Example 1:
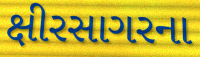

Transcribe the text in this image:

ક્ષીરસાગરના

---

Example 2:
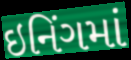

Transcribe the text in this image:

ઇનિંગમાં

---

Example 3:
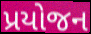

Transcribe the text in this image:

પ્રયોજન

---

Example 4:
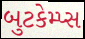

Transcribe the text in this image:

બુટકેમ્પ્સ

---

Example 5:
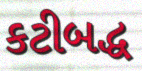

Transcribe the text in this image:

કટીબદ્ધ